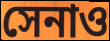
সেনাও